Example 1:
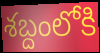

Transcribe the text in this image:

శబ్దంలోకి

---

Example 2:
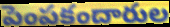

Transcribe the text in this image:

పెంపకందారుల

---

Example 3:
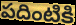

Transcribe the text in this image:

పదింటికి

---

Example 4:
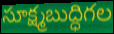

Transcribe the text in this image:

సూక్ష్మబుద్ధిగల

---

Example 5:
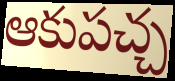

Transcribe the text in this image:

ఆకుపచ్చ